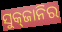
ସୁକ୍‌ଜାନିର